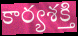
కార్యశక్తి